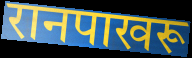
रानपाखरू